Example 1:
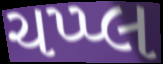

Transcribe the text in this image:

ચપ્પ્લ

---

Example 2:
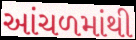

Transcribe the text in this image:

આંચળમાંથી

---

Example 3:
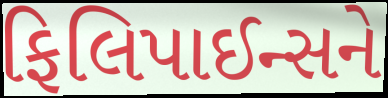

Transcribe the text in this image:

ફિલિપાઈન્સને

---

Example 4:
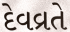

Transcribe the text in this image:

દેવવ્રતે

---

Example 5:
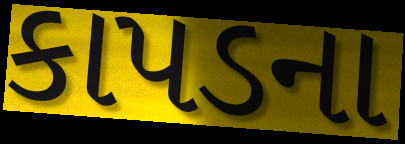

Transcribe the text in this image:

કાપડના